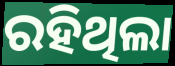
ରହିଥିଲା